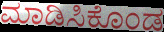
ಮಾಡಿಸಿಕೊಂಡ